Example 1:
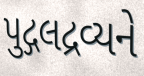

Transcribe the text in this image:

પુદ્ગલદ્રવ્યને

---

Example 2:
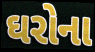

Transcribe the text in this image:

ઘરોના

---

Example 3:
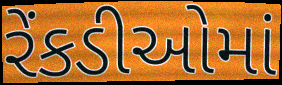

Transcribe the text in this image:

રેંકડીઓમાં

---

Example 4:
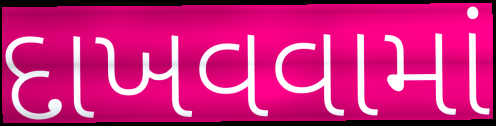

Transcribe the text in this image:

દાખવવામાં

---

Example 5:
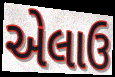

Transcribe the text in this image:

એલાઉ